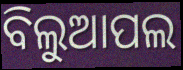
ବିଲୁଆପଲ